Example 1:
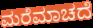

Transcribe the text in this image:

ಮರೆಮಾಚದೆ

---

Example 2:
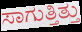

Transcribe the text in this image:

ಸಾಗುತ್ತಿತ್ತು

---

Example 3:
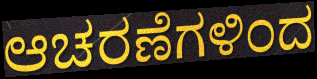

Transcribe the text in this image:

ಆಚರಣೆಗಳಿಂದ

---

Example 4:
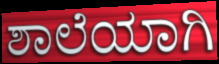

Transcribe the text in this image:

ಶಾಲೆಯಾಗಿ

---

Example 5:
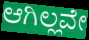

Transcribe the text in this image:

ಆಗಿಲ್ಲವೇ